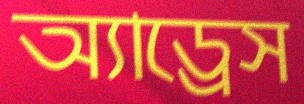
অ্যাড্রেস